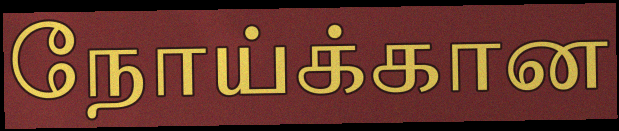
நோய்க்கான